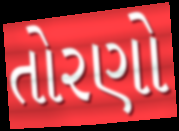
તોરણો